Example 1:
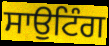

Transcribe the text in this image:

ਸਾਉਟਿੰਗ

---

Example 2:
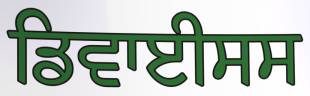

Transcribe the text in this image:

ਡਿਵਾਈਸਸ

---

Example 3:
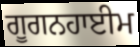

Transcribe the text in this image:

ਗੂਗਨਹਾਈਮ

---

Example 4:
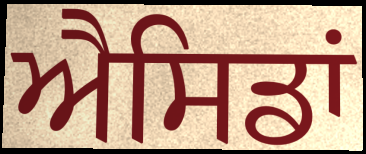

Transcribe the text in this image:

ਐਸਿਡਾਂ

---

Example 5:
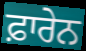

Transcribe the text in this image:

ਫ਼ਾਰੇਨ